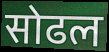
सोढल